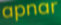
apnar